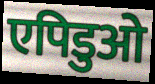
एपिडुओ